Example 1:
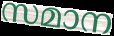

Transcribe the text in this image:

സമാന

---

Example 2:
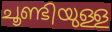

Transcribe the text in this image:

ചൂണ്ടിയുള്ള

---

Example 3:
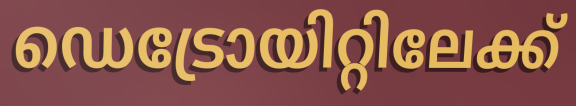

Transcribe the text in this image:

ഡെട്രോയിറ്റിലേക്ക്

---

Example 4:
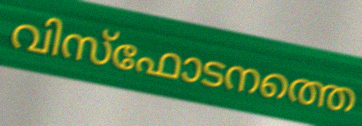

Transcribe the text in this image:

വിസ്ഫോടനത്തെ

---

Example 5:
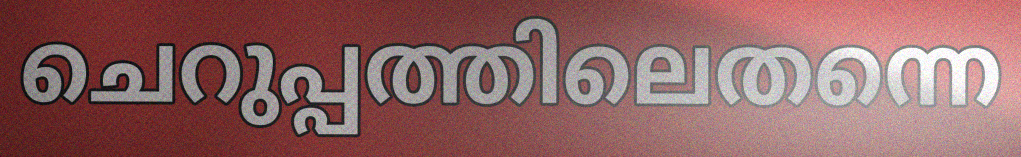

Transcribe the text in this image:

ചെറുപ്പത്തിലെതന്നെ